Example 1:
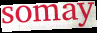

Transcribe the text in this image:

somay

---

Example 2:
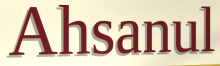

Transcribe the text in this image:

Ahsanul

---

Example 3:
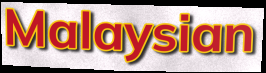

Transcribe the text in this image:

Malaysian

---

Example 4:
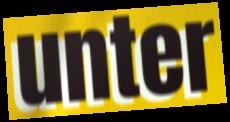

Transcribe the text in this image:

unter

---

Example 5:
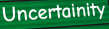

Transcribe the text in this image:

Uncertainity